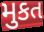
મુકત